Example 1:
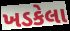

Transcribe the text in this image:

ખડકેલા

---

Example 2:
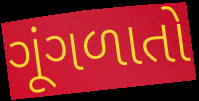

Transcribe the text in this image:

ગૂંગળાતો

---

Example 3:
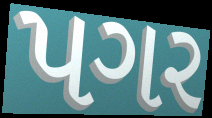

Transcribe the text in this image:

પગર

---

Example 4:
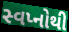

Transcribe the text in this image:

સ્વપ્નોથી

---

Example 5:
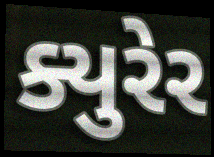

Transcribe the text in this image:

ક્યુરેર